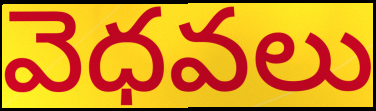
వెధవలు